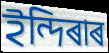
ইন্দিৰাৰ